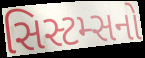
સિસ્ટમ્સનો